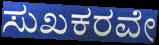
ಸುಖಕರವೇ